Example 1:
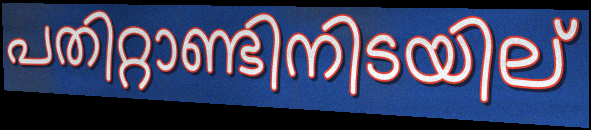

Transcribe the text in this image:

പതിറ്റാണ്ടിനിടയില്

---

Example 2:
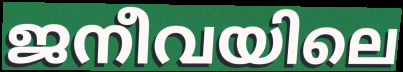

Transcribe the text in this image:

ജനീവയിലെ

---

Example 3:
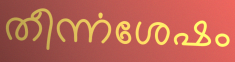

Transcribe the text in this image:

തീൎന്നശേഷം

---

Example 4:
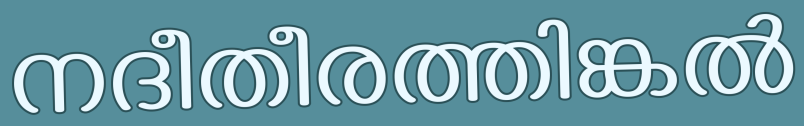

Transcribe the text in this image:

നദീതീരത്തിങ്കൽ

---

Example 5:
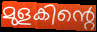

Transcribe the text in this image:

മുളകിന്റെ